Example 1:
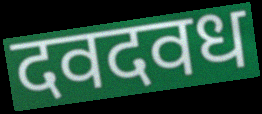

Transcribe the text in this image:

दवदवध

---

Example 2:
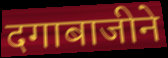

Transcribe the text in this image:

दगाबाजीने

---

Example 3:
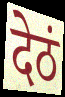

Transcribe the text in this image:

देठं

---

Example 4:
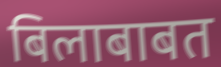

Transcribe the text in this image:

बिलाबाबत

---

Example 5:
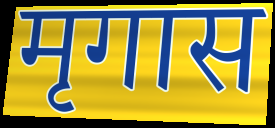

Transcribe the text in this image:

मृगास